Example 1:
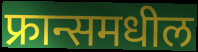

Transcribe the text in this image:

फ्रान्समधील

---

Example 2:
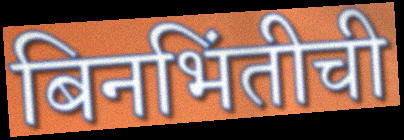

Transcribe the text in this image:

बिनभिंतीची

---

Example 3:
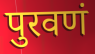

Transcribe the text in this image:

पुरवणं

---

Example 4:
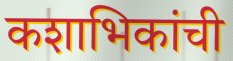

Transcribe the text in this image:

कशाभिकांची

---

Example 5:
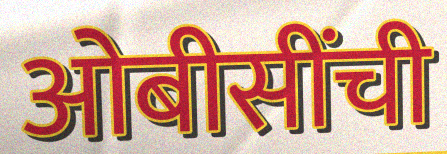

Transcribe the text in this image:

ओबीसींची